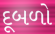
દૂબળો